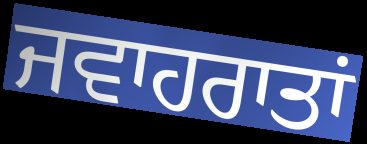
ਜਵਾਹਰਾਤਾਂ